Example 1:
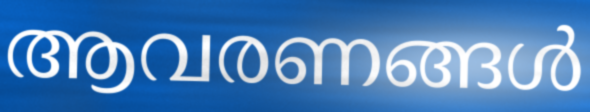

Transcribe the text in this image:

ആവരണങ്ങൾ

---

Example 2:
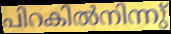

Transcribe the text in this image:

പിറകിൽനിന്നു്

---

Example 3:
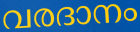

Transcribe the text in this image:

വരദാനം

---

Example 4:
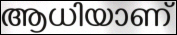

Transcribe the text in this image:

ആധിയാണ്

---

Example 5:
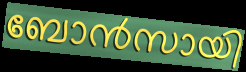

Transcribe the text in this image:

ബോൻസായി